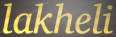
lakheli